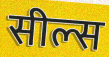
सील्स